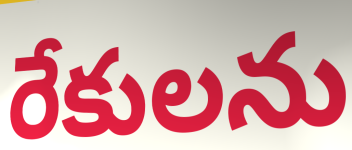
రేకులను